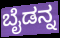
ಬೈಡನ್ನ